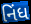
નિંધ